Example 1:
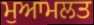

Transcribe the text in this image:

ਮੁਆਮਲਤ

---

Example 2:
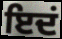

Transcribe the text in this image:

ਇਦਂ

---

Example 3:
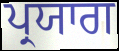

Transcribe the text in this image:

ਪ੍ਰਯਾਗ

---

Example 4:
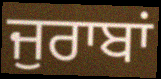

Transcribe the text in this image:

ਜੁਰਾਬਾਂ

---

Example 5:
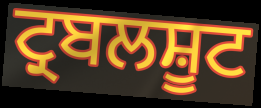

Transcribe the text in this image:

ਟ੍ਰਬਲਸ਼ੂਟ